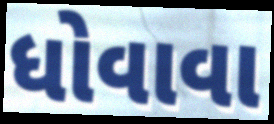
ધોવાવા